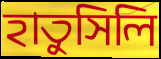
হাতুসিলি